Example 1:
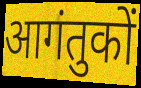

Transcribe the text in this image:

आगंतुकों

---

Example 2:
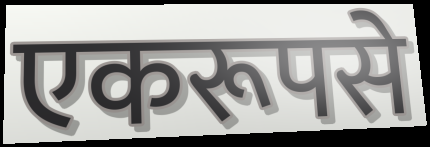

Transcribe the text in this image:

एकरूपसे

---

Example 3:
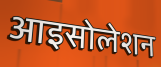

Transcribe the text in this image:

आइसोलेशन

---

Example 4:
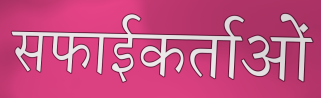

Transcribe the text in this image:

सफाईकर्ताओं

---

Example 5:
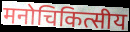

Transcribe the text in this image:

मनोचिकित्सीय